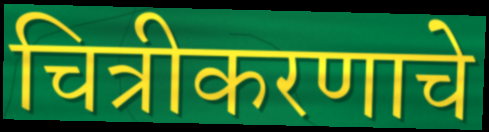
चित्रीकरणाचे